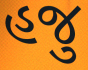
હજુ